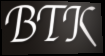
BTK